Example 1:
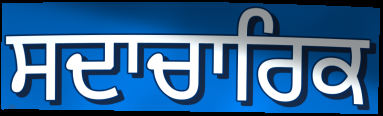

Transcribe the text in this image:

ਸਦਾਚਾਰਿਕ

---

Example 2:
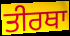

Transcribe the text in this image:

ਤੀਰਥਾ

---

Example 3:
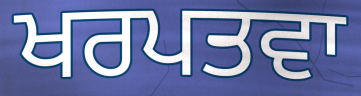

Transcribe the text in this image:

ਖਰਪਤਵਾ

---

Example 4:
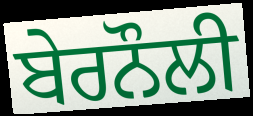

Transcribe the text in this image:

ਬੇਰਨੌਲੀ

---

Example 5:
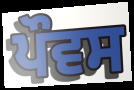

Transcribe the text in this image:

ਪੌਵਸ